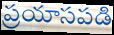
ప్రయాసపడి